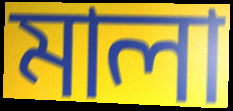
মালা